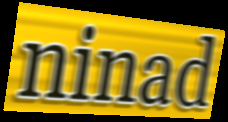
ninad